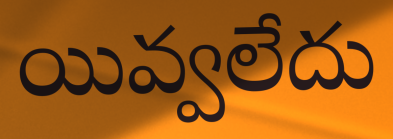
యివ్వలేదు